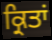
ਕ੍ਰਿਤਾਂ